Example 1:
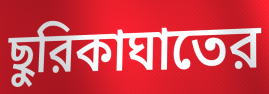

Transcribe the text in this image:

ছুরিকাঘাতের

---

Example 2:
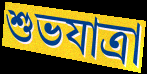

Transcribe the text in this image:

শুভযাত্রা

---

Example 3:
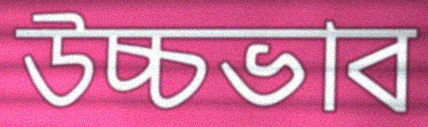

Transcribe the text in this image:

উচ্চভাব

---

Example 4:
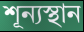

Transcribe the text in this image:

শূন্যস্থান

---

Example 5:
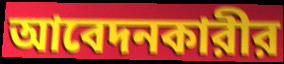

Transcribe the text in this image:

আবেদনকারীর